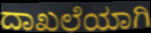
ದಾಖಲೆಯಾಗಿ